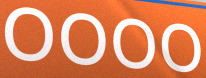
OOOO